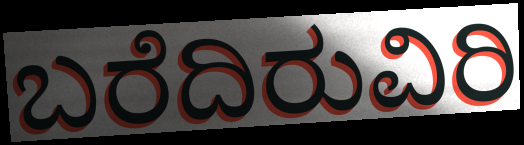
ಬರೆದಿರುವಿರಿ